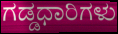
ಗಡ್ಡಧಾರಿಗಳು